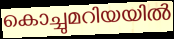
കൊച്ചുമറിയയിൽ